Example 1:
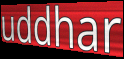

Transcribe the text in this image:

uddhar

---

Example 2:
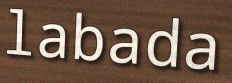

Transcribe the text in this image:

labada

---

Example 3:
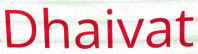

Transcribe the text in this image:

Dhaivat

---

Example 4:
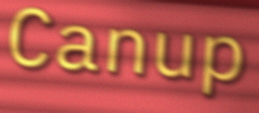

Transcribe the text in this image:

Canup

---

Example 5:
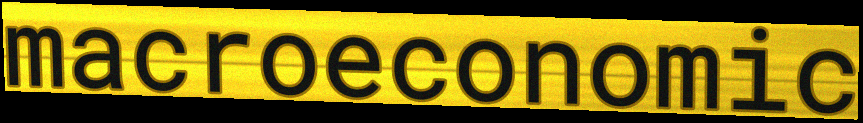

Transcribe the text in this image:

macroeconomic